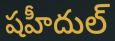
షహీదుల్